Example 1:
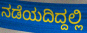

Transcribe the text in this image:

ನಡೆಯದಿದ್ದಲ್ಲಿ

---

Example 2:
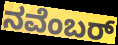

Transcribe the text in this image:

ನವೆಂಬರ್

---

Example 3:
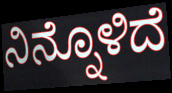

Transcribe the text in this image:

ನಿನ್ನೊಳಿದೆ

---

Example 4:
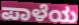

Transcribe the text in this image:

ಪಾಳೆಯ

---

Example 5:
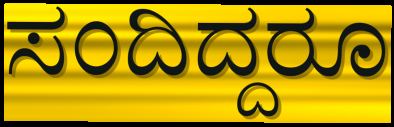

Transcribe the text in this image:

ಸಂದಿದ್ದರೂ